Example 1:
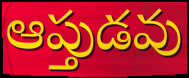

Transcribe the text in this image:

ఆప్తుడవు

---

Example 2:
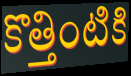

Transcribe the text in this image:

కొత్తింటికి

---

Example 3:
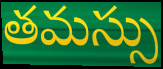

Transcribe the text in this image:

తమస్సు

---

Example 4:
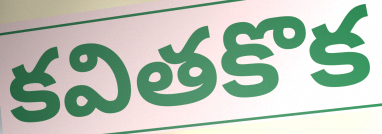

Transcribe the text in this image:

కవితకొక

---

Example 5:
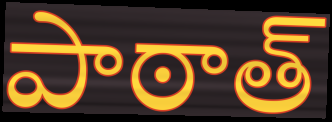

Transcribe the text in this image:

పాఠాత్